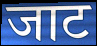
जाट